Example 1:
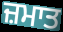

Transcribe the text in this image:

ਜ਼ਮਾਤ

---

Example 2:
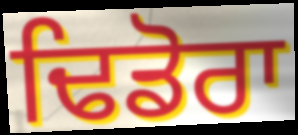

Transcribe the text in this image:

ਢਿਡੋਰਾ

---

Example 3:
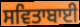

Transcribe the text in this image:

ਸਵਿਤਾਬਾਈ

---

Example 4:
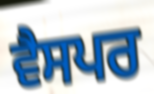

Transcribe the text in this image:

ਵੈਸਪਰ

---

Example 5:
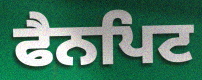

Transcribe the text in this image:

ਫੈਨਪਿਟ